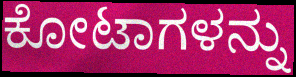
ಕೋಟಾಗಳನ್ನು